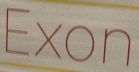
Exon